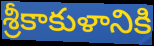
శ్రీకాకుళానికి